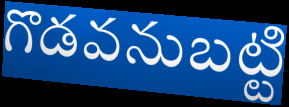
గొడవనుబట్టి